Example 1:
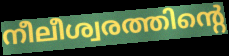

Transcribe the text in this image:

നീലീശ്വരത്തിന്റെ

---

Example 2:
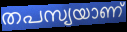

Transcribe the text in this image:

തപസ്യയാണ്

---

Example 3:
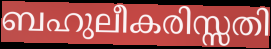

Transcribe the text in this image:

ബഹുലീകരിസ്സതി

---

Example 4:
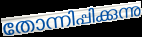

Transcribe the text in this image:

തോന്നിപ്പിക്കുന്നു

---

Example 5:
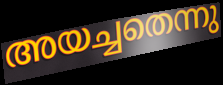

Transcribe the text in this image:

അയച്ചതെന്നു